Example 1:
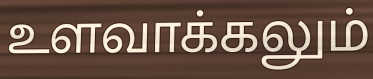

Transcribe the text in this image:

உளவாக்கலும்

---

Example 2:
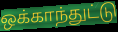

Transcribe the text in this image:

ஒக்காந்துட்டு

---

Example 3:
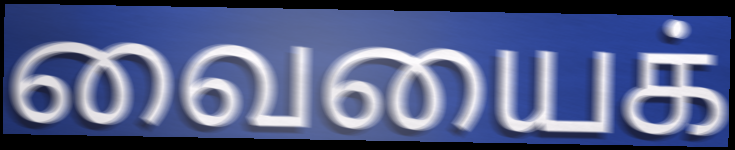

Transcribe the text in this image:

வையைக்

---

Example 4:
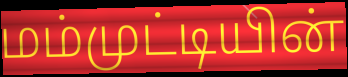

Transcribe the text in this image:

மம்முட்டியின்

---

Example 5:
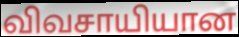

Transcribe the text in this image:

விவசாயியான